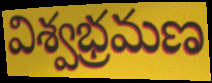
విశ్వభ్రమణ